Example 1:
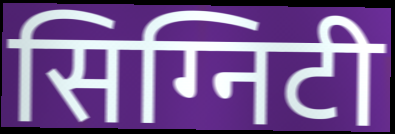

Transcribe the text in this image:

सिग्निटी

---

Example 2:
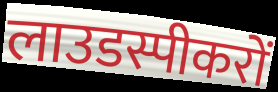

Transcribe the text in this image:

लाउडस्पीकरों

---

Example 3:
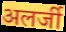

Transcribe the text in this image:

अलर्जी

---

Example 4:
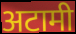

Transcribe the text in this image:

अटामी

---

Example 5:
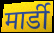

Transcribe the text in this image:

मार्डी